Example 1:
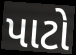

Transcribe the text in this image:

પાટો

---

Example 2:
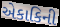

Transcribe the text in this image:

એકાકિની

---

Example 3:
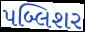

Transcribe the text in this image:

પબ્લિશર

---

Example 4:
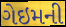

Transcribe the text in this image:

ગેઇમની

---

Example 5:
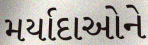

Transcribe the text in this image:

મર્યાદાઓને